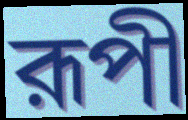
রূপী